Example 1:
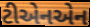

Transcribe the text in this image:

ટીએનએન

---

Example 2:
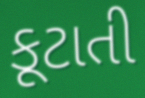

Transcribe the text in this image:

કૂટાતી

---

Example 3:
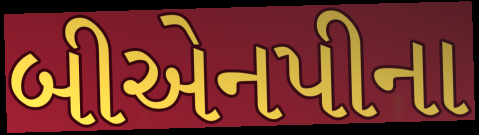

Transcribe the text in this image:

બીએનપીના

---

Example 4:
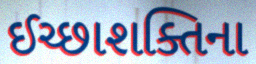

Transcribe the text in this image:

ઈચ્છાશક્તિના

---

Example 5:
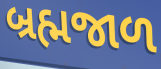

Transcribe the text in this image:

બ્રહ્મજાળ